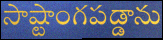
సాష్టాంగపడ్డాను